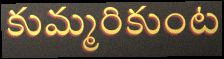
కుమ్మరికుంట